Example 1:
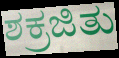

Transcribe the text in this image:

ಶಕ್ರಜಿತು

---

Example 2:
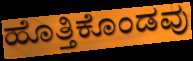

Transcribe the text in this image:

ಹೊತ್ತಿಕೊಂಡವು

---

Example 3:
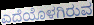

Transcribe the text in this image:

ಎದೆಯೊಳಗಿರುವ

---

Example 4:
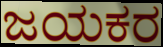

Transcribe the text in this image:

ಜಯಕರ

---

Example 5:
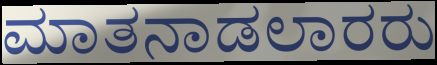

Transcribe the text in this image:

ಮಾತನಾಡಲಾರರು